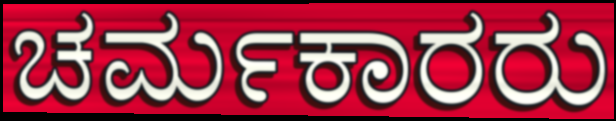
ಚರ್ಮಕಾರರು